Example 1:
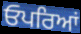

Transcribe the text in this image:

ਓਪਰਿਆਂ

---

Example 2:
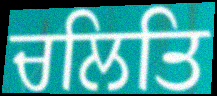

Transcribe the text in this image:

ਚਲਿਤਿ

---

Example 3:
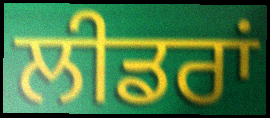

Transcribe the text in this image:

ਲੀਡਰਾਂ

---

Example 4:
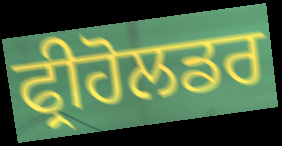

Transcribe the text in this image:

ਫ੍ਰੀਹੋਲਡਰ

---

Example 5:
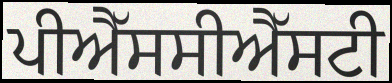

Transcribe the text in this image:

ਪੀਐੱਸਸੀਐੱਸਟੀ